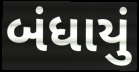
બંધાયું